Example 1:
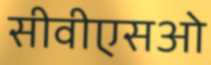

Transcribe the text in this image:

सीवीएसओ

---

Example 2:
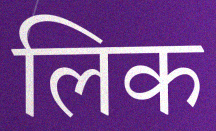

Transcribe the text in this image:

लिक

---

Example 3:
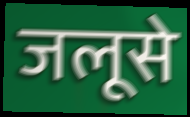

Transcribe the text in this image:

जलूसे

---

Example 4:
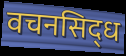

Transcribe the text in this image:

वचनसिद्ध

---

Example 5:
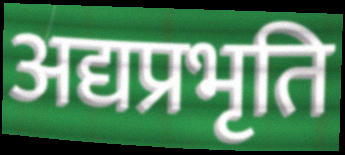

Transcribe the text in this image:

अद्यप्रभृति